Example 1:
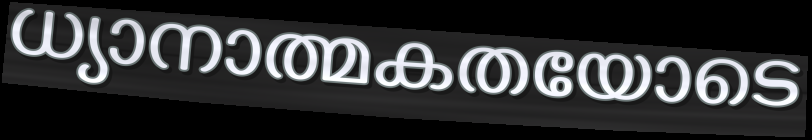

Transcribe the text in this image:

ധ്യാനാത്മകതയോടെ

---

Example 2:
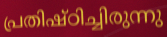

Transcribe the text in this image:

പ്രതിഷ്ഠിച്ചിരുന്നു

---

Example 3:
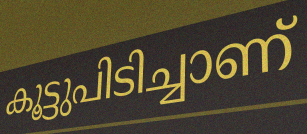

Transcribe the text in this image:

കൂട്ടുപിടിച്ചാണ്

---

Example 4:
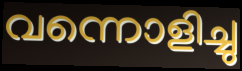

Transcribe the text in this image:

വന്നൊളിച്ചു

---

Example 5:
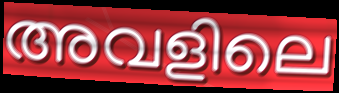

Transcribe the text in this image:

അവളിലെ